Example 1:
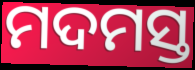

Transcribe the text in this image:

ମଦମସ୍ତ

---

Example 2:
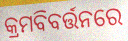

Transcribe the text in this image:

କ୍ରମବିବର୍ତ୍ତନରେ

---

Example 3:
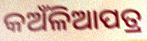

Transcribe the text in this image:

କଅଁଳିଆପତ୍ର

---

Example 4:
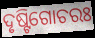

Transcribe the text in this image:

ଦୃଷ୍ଟିଗୋଚରଃ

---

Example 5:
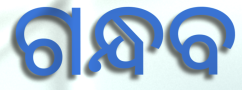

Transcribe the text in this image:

ଗନ୍ଧବ